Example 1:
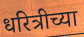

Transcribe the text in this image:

धरित्रीच्या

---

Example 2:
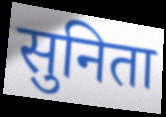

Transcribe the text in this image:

सुनिता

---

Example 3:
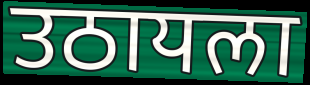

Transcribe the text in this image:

उठायला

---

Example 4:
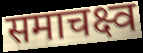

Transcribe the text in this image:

समाचक्ष्व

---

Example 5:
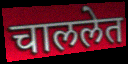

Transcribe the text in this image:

चाललेत